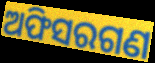
ଅଫିସରଗଣ